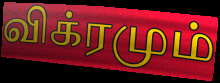
விக்ரமும்